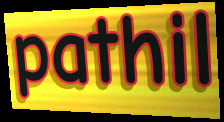
pathil